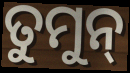
ତୁମୁନ୍